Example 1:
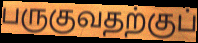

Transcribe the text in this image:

பருகுவதற்குப்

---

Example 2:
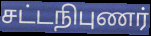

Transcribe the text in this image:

சட்டநிபுணர்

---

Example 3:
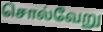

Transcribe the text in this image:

சொல்வேறு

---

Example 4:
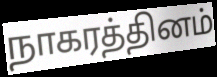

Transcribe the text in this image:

நாகரத்தினம்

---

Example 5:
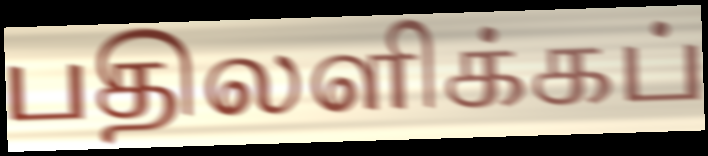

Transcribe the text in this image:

பதிலளிக்கப்